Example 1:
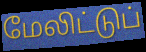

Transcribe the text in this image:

மேலிட்டுப்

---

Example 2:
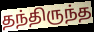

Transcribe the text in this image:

தந்திருந்த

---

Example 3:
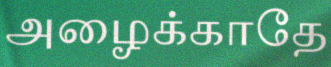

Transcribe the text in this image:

அழைக்காதே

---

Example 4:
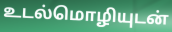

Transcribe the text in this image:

உடல்மொழியுடன்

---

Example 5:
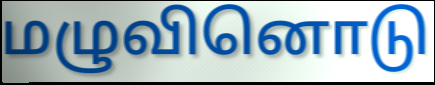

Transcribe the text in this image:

மழுவினொடு